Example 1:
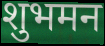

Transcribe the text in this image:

शुभमन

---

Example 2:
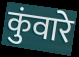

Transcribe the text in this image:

कुंवारे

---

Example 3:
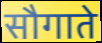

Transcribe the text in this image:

सौगाते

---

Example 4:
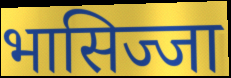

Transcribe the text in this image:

भासिज्जा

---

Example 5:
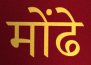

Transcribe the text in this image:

मोंढे